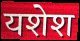
यशेश